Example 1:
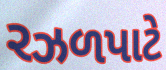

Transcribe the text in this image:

રઝળપાટે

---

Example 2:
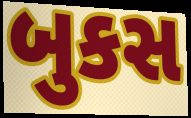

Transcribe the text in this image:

બુકસ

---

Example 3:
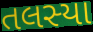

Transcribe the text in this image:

તલસ્યા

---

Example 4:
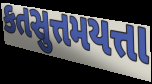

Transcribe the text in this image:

કતસુત્તમયત્તા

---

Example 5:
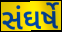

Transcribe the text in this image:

સંઘર્ષે